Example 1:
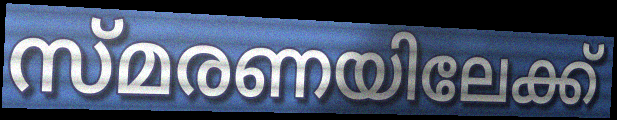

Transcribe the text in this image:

സ്മരണയിലേക്ക്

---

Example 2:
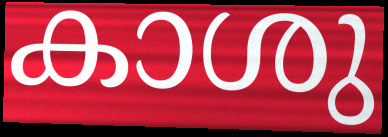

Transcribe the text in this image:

കാശു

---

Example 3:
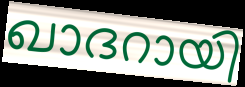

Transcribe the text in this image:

ഖാദറായി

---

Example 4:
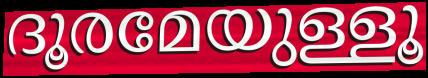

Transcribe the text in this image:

ദൂരമേയുള്ളൂ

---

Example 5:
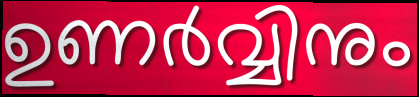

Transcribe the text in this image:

ഉണർവ്വിനും